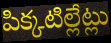
పిక్కటిల్లేట్లు